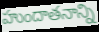
హుందాతనాన్ని